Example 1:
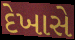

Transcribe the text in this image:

દેખાસે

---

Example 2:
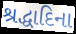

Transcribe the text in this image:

શ્રદ્ધાદિના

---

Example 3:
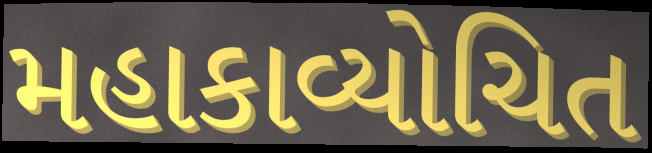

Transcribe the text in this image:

મહાકાવ્યોચિત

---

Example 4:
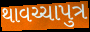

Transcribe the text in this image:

થાવચ્ચાપુત્ર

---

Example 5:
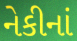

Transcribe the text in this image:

નેકીનાં